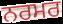
ਨਰਮਰ